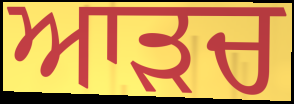
ਆੜਚ